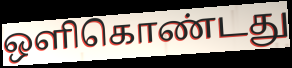
ஒளிகொண்டது